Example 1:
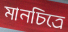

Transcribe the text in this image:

মানচিত্রে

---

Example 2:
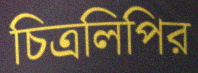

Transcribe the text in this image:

চিত্রলিপির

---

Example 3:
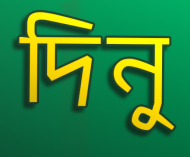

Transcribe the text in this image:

দিনু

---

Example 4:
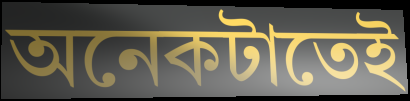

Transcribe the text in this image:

অনেকটাতেই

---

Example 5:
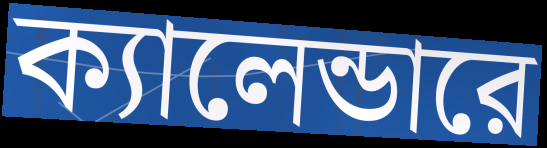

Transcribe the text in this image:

ক্যালেন্ডারে